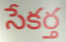
సేకర్త